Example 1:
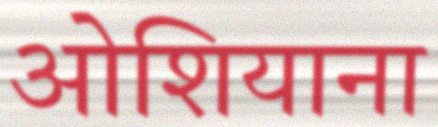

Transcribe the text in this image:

ओशियाना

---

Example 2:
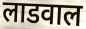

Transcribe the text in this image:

लाडवाल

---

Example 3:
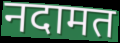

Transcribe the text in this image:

नदामत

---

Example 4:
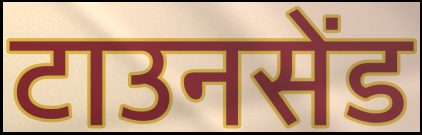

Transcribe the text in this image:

टाउनसेंड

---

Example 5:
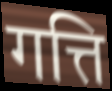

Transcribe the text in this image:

गत्ति